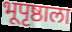
भूपृष्ठाला